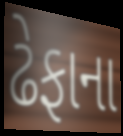
ઢેફાના